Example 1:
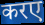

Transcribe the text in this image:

करए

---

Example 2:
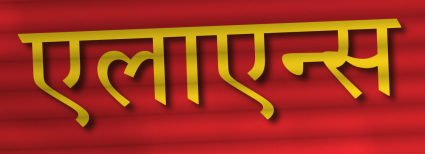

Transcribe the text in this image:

एलाएन्स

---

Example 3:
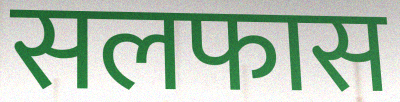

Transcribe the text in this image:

सलफास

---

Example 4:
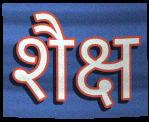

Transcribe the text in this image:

शैक्ष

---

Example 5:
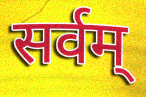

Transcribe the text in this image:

सर्वम्